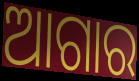
ଆଗାର